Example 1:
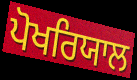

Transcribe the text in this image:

ਪੋਖਰਿਯਾਲ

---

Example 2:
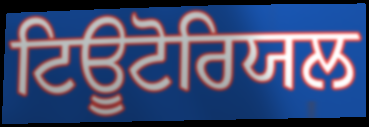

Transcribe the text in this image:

ਟਿਊਟੋਰਿਯਲ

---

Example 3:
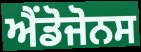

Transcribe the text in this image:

ਐਂਡੋਜੋਨਸ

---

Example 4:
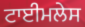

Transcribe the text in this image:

ਟਾਈਮਲੇਸ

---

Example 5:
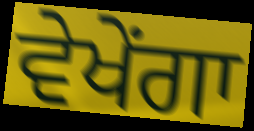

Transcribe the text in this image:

ਵੇਖੇਂਗਾ